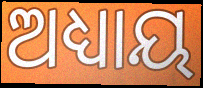
ଅଧ୍ୟାୟ